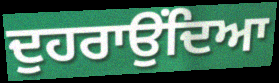
ਦੁਹਰਾਉਂਦਿਆ